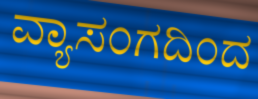
ವ್ಯಾಸಂಗದಿಂದ